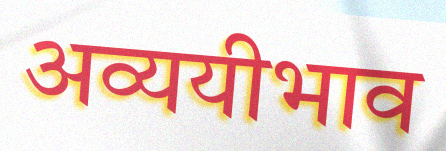
अव्ययीभाव